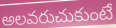
అలవరుచుకుంటే